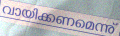
വായിക്കണമെന്നു്